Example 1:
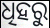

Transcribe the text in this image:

ଧିହରୁ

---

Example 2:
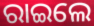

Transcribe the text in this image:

ରାଇଲେ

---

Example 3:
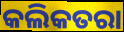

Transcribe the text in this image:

କଲିକତରା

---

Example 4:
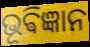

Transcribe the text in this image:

ଭୂଵିଜ୍ଞାନ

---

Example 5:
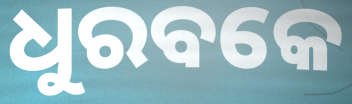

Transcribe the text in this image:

ଧୁରବକେ